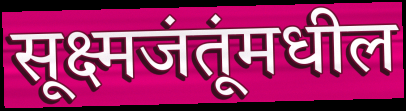
सूक्ष्मजंतूंमधील